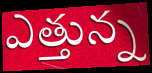
ఎత్తున్న